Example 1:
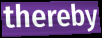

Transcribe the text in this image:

thereby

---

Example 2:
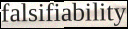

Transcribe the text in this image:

falsifiability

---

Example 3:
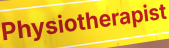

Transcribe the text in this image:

Physiotherapist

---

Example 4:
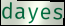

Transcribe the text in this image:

dayes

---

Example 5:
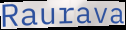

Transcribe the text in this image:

Raurava